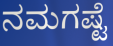
ನಮಗಷ್ಟೆ